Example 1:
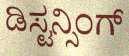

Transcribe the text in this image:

ಡಿಸ್ಟನ್ಸಿಂಗ್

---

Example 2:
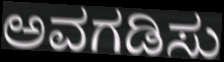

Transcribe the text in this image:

ಅವಗಡಿಸು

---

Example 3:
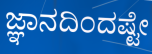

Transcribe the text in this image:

ಜ್ಞಾನದಿಂದಷ್ಟೇ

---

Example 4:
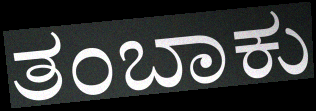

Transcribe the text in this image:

ತಂಬಾಕು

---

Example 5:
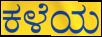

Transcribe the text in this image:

ಕಳೆಯ